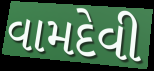
વામદેવી